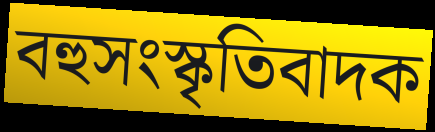
বহুসংস্কৃতিবাদক